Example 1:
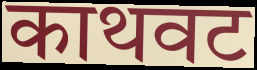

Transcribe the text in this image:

काथवट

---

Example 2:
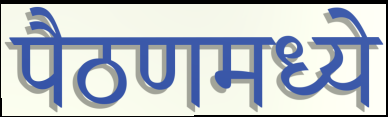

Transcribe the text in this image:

पैठणमध्ये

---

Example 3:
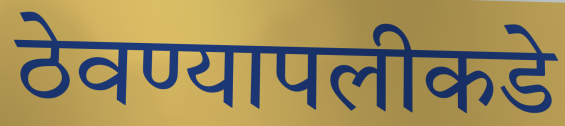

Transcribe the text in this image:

ठेवण्यापलीकडे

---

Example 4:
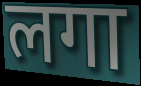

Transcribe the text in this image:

लगा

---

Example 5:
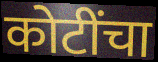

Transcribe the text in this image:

कोटींचा